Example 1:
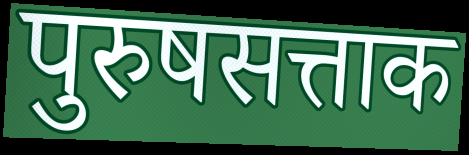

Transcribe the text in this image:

पुरुषसत्ताक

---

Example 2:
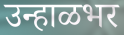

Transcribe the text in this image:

उन्हाळभर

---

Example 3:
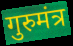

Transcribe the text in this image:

गुरुमंत्र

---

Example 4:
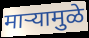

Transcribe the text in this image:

माऱ्यामुळे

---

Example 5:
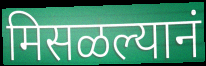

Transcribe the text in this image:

मिसळल्यानं